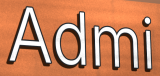
Admi